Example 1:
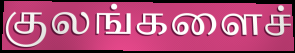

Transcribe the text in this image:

குலங்களைச்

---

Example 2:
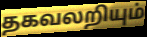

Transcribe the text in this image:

தகவலறியும்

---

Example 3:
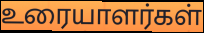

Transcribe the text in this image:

உரையாளர்கள்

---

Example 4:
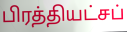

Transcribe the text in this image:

பிரத்தியட்சப்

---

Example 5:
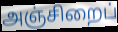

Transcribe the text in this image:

அஞ்சிறைப்